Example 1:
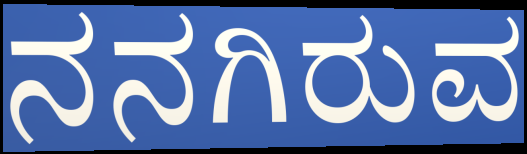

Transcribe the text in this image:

ನನಗಿರುವ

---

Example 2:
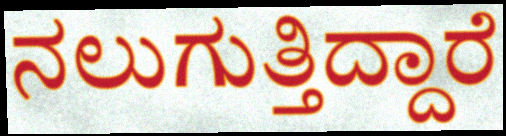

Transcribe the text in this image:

ನಲುಗುತ್ತಿದ್ದಾರೆ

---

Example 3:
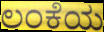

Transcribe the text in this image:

ಲಂಕೆಯ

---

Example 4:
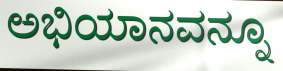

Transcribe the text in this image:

ಅಭಿಯಾನವನ್ನೂ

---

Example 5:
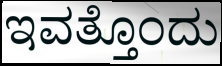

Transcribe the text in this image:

ಇವತ್ತೊಂದು